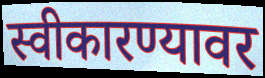
स्वीकारण्यावर